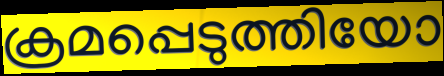
ക്രമപ്പെടുത്തിയോ